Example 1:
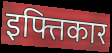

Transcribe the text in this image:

इफ्तिकार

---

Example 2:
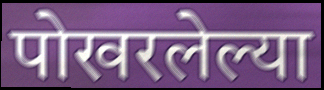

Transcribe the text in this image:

पोखरलेल्या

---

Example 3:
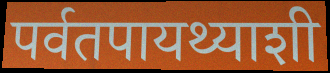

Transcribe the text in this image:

पर्वतपायथ्याशी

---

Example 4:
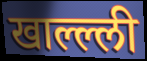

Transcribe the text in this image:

खाल्ल्ली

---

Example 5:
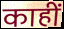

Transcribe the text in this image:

काहीं